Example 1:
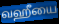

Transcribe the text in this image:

வஹீயை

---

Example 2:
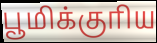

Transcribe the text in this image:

பூமிக்குரிய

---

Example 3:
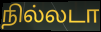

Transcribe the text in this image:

நில்லடா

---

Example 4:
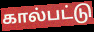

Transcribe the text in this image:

கால்பட்டு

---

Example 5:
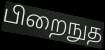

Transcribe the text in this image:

பிறைநுத